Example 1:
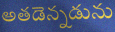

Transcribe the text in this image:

అతడెన్నడును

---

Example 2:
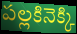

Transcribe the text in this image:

పల్లకినెక్కి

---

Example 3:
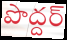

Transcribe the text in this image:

పొద్దర్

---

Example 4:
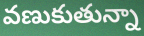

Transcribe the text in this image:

వణుకుతున్నా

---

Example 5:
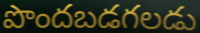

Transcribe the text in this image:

పొందబడగలడు